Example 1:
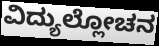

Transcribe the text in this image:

ವಿದ್ಯುಲ್ಲೋಚನ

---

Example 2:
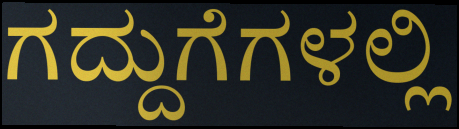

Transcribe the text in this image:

ಗದ್ದುಗೆಗಳಲ್ಲಿ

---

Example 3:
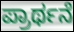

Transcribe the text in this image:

ಪ್ರಾರ್ಥನೆ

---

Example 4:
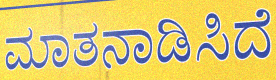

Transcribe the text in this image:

ಮಾತನಾಡಿಸಿದೆ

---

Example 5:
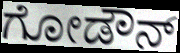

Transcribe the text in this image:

ಗೋಡೌನ್